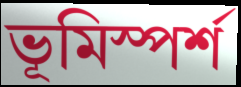
ভূমিস্পর্শ